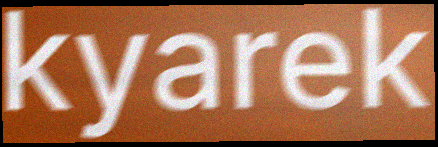
kyarek